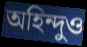
অহিন্দুও